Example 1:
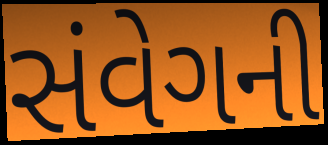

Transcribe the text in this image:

સંવેગની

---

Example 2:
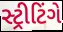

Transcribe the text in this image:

સ્ટ્રીટિંગે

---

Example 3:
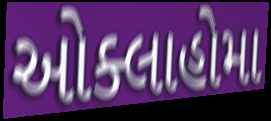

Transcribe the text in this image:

ઓક્લાહોમા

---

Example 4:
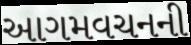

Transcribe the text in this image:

આગમવચનની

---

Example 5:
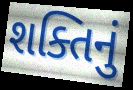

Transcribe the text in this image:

શક્તિનું